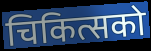
चिकित्सको